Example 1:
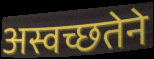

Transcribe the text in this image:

अस्वच्छतेने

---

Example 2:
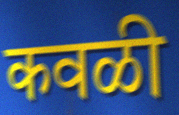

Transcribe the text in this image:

कवळी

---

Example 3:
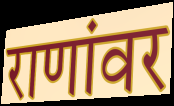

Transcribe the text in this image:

राणांवर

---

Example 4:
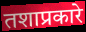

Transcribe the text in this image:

तशाप्रकारे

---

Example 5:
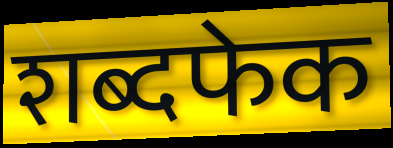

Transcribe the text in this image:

शब्दफेक